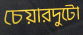
চেয়ারদুটো